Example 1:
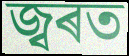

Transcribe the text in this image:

জ্বৰত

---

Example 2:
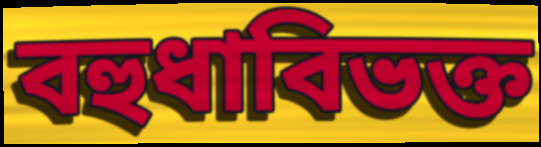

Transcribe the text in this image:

বহুধাবিভক্ত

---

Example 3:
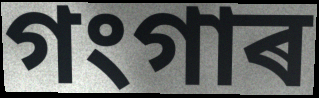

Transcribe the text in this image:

গংগাৰ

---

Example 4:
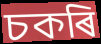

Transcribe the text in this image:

চকৰি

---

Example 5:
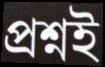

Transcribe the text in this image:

প্ৰশ্নই